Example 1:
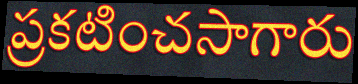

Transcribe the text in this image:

ప్రకటించసాగారు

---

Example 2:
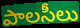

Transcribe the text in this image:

పాలసీలు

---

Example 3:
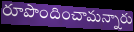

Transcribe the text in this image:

రూపొందించామన్నారు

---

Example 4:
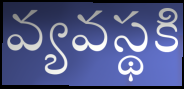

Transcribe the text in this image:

వ్యవస్థకి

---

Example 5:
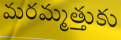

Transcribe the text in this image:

మరమ్మత్తుకు